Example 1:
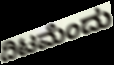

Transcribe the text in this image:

ದಿಟಮೆಂದು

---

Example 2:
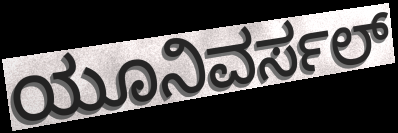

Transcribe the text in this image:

ಯೂನಿವರ್ಸಲ್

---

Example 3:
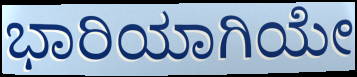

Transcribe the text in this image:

ಭಾರಿಯಾಗಿಯೇ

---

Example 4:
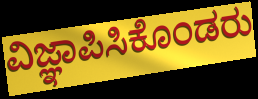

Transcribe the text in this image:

ವಿಜ್ಞಾಪಿಸಿಕೊಂಡರು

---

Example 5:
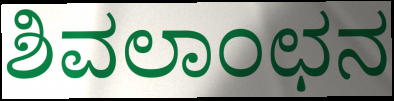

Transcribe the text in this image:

ಶಿವಲಾಂಛನ